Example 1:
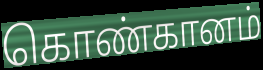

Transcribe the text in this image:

கொண்கானம்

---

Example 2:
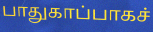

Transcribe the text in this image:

பாதுகாப்பாகச்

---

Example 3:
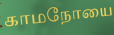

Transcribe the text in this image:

காமநோயை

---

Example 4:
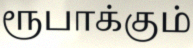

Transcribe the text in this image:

ரூபாக்கும்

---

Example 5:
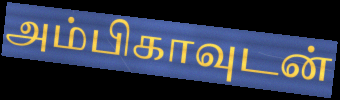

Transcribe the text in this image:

அம்பிகாவுடன்